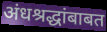
अंधश्रद्धांबाबत